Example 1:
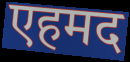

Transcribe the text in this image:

एहमद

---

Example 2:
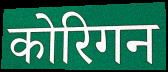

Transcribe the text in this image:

कोरिगन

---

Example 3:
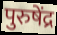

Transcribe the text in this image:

पुरुषेंद्र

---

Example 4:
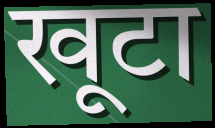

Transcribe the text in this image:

खूटा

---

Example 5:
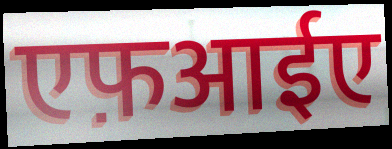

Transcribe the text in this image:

एफ़आईए